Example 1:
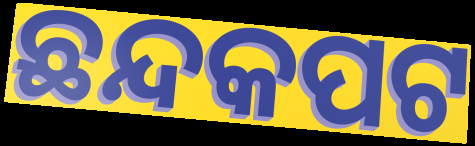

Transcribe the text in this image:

ଛନ୍ଦକପଟ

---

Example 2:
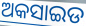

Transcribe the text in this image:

ଅକସାଇଡ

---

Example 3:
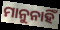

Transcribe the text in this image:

ମାନୁନାହିଁ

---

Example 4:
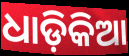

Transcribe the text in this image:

ଧାଡ଼ିକିଆ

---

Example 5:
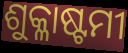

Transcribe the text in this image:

ଶୁକ୍ଳାଷ୍ଟମୀ